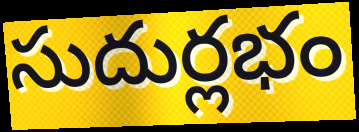
సుదుర్లభం